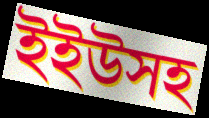
ইইউসহ